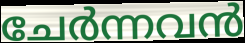
ചേർന്നവൻ